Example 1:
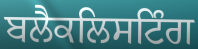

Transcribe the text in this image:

ਬਲੈਕਲਿਸਟਿੰਗ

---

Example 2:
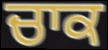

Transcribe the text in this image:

ਚਾਕ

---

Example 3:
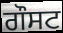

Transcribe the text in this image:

ਗੌਸਟ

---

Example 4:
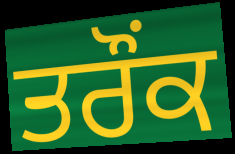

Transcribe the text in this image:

ਤਰੌਂਕ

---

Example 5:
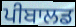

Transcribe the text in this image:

ਪੀਬਾਲਡ